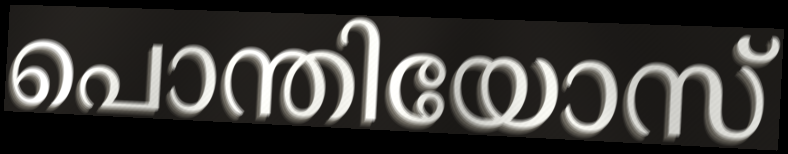
പൊന്തിയോസ്